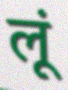
लूं